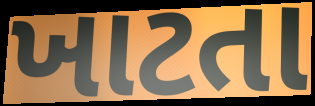
ખાટતા